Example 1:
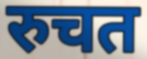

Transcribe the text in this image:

रुचत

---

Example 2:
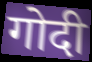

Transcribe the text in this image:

गोदी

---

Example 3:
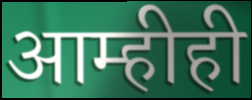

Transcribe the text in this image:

आम्हीही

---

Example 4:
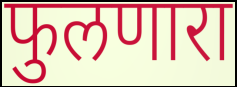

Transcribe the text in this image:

फुलणारा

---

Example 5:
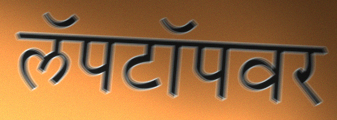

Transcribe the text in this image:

लॅपटॉपवर